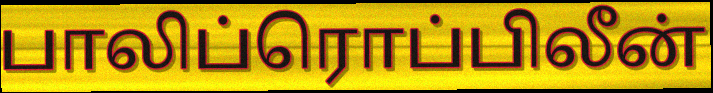
பாலிப்ரொப்பிலீன்